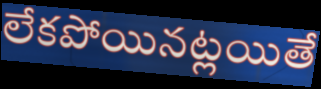
లేకపోయినట్లయితే